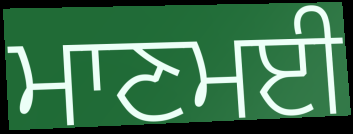
ਮਾਣਮਈ